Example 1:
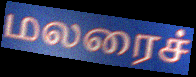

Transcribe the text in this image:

மலரைச்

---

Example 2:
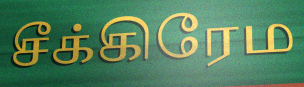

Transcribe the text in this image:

சீக்கிரேம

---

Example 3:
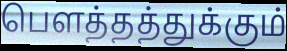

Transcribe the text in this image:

பௌத்தத்துக்கும்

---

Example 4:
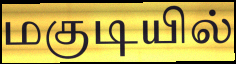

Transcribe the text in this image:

மகுடியில்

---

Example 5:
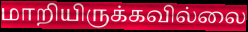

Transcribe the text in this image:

மாறியிருக்கவில்லை